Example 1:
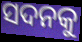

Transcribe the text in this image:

ସଦନକୁ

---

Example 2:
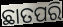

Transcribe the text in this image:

ଛାତପରି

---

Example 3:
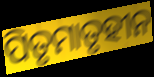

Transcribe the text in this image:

ପିତୃମାତୃହୀନ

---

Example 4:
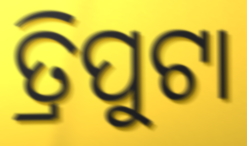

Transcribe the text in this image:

ତ୍ରିପୁଟା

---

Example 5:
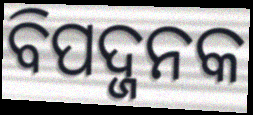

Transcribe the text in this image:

ବିପଦ୍ଜନକ